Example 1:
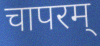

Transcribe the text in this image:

चापरम्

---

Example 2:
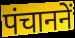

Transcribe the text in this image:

पंचाननें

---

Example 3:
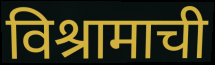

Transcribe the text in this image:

विश्रामाची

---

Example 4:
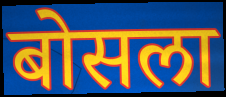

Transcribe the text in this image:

बोसला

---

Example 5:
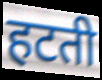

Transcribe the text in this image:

हटती